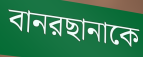
বানরছানাকে